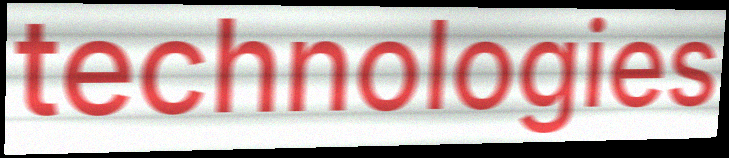
technologies